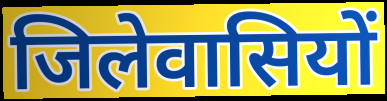
जिलेवासियों